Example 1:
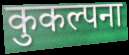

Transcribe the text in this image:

कुकल्पना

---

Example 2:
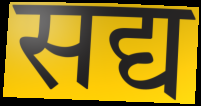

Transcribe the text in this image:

सद्य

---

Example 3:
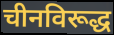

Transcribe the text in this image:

चीनविरूद्ध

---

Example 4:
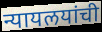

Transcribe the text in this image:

न्यायलयांची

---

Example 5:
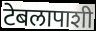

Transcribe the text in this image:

टेबलापाशी